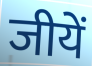
जीयें